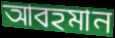
আবহমান